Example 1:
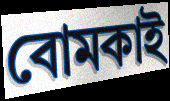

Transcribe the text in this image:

বোমকাই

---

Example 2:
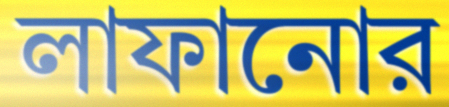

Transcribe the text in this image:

লাফানোর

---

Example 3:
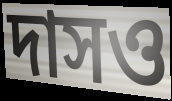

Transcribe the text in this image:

দাসও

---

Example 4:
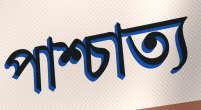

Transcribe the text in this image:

পাশ্চাত্য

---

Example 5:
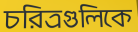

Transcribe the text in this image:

চরিত্রগুলিকে